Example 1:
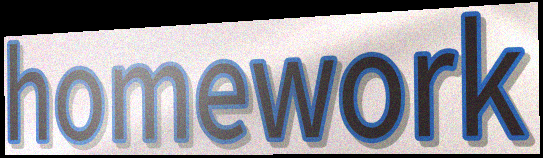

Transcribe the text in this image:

homework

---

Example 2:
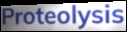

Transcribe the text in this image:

Proteolysis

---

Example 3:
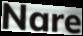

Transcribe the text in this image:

Nare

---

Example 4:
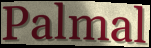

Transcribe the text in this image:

Palmal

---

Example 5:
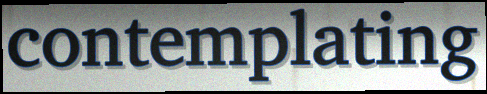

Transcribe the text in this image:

contemplating